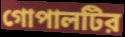
গোপালটির